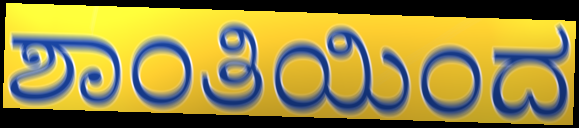
ಶಾಂತಿಯಿಂದ